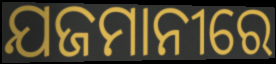
ଯଜମାନୀରେ